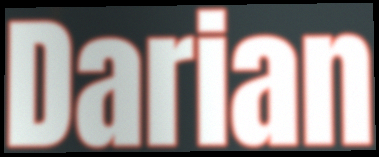
Darian